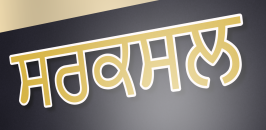
ਸਰਕਸਲ